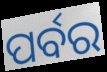
ପର୍ବର